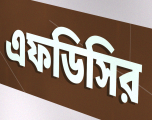
এফডিসির